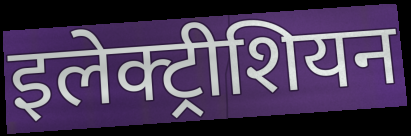
इलेक्‍ट्रीशियन